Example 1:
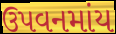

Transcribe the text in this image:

ઉપવનમાંય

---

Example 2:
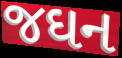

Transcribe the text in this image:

જઘન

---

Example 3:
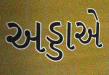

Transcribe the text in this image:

અડ્ડાએ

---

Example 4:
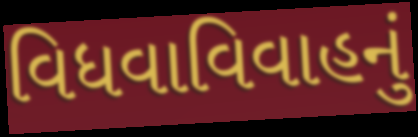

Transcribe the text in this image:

વિધવાવિવાહનું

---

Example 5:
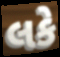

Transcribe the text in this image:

લકે